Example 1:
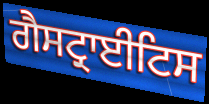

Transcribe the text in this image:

ਗੈਸਟ੍ਰਾਈਟਿਸ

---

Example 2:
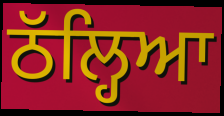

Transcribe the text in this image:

ਠੱਲ੍ਹਿਆ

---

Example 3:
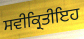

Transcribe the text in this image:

ਸਵੀਕ੍ਰਿਤੀਇਹ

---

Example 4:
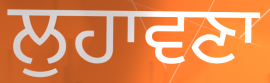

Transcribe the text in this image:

ਲੁਹਾਵਣਾ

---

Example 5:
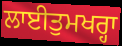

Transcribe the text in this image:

ਲਾਈਤੁਮਖਰ੍ਹਾ